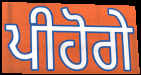
ਪੀਹੋਗੇ